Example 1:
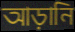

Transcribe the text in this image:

আড়ানি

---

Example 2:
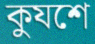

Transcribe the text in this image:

কুযশে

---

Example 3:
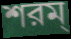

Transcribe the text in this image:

শরম্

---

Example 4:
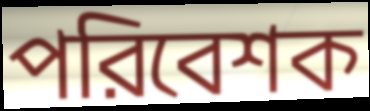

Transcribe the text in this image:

পরিবেশক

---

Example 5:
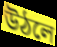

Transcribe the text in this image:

উঠলে